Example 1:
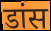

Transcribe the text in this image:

डांस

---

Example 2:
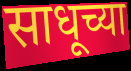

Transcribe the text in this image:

साधूच्या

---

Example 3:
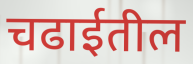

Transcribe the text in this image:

चढाईतील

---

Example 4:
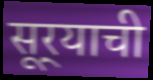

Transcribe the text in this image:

सूर्याची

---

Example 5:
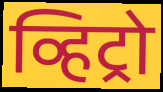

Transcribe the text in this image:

व्हिट्रो